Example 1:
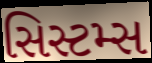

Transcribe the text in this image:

સિસ્ટમ્સ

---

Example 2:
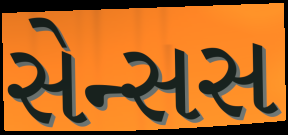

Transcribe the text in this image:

સેન્સસ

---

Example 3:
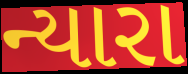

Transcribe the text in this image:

ન્યારા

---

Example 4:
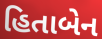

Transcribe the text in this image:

હિતાબેન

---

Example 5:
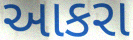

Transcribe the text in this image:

આકરા